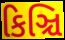
કિઞ્ચિ